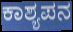
ಕಾಶ್ಯಪನ